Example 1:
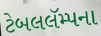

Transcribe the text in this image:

ટેબલલૅમ્પના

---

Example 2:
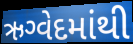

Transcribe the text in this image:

ઋગ્વેદમાંથી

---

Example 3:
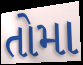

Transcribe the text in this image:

તોમા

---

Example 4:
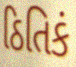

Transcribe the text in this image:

ઠિતિકં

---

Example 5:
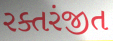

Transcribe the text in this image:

રક્તરંજીત